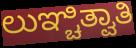
ಲುಞ್ಚಿತ್ವಾತಿ